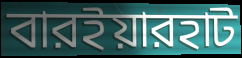
বারইয়ারহাট